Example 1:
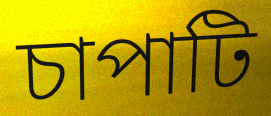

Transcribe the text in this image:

চাপাটি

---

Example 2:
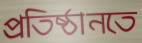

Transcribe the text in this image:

প্ৰতিষ্ঠানতে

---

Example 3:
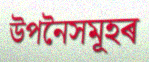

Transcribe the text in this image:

উপনৈসমূহৰ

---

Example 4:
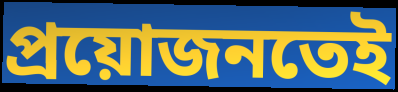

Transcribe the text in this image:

প্ৰয়োজনতেই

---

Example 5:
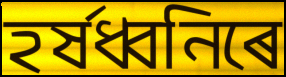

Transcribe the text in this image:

হৰ্ষধ্বনিৰে